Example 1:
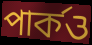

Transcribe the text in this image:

পার্কও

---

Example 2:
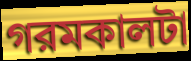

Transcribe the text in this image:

গরমকালটা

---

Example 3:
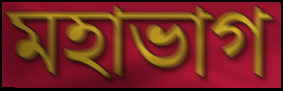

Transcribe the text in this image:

মহাভাগ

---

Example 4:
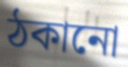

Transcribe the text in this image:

ঠকানো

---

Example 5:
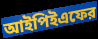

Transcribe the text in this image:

আইপিইএফের